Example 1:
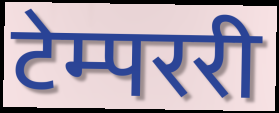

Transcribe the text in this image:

टेम्पररी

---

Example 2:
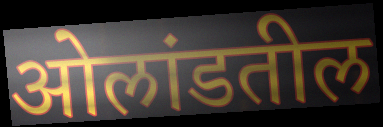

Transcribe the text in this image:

ओलांडतील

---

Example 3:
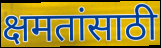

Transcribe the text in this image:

क्षमतांसाठी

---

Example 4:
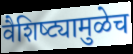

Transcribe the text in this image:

वैशिष्ट्यामुळेच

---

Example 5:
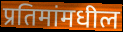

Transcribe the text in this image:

प्रतिमांमधील